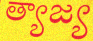
త్యాజ్య